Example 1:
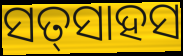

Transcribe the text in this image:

ସତ୍‌ସାହସ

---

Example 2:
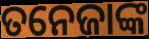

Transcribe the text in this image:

ତନେଜାଙ୍କ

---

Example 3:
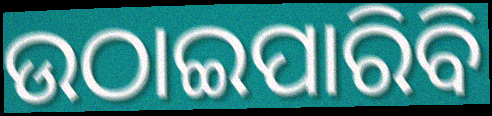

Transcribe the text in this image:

ଉଠାଇପାରିବି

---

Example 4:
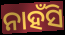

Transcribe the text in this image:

ନାହଁସି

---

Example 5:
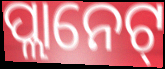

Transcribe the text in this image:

ପ୍ଲାନେଟ୍